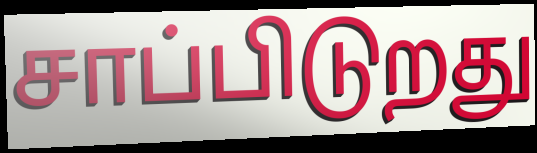
சாப்பிடுறது